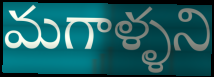
మగాళ్ళని